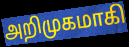
அறிமுகமாகி